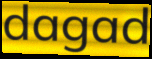
dagad